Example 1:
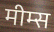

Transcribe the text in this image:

मीम्स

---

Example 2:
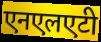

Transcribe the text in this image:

एनएलएटी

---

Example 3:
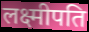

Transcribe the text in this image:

लक्ष्मीपति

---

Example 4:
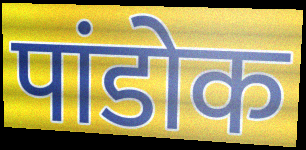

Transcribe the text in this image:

पांडोक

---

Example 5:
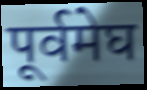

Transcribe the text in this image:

पूर्वमेघ